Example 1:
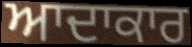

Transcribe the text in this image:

ਆਦਾਕਾਰ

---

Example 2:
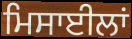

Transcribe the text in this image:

ਮਿਸਾਈਲਾਂ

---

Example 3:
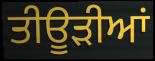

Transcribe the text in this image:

ਤੀਊੜੀਆਂ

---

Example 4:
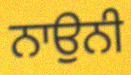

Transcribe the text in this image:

ਨਾਉਨੀ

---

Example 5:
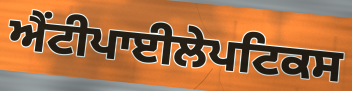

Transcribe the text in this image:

ਐਂਟੀਪਾਈਲੇਪਟਿਕਸ